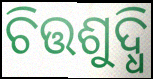
ଚିତ୍ତଶୁଦ୍ଧି